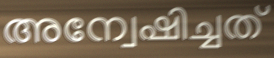
അന്വേഷിച്ചത്